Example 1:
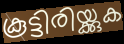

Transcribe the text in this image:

കൂട്ടിരിയ്ക്കുക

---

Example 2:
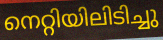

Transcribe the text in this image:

നെറ്റിയിലിടിച്ചു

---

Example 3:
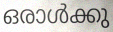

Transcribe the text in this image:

ഒരാൾക്കു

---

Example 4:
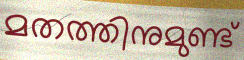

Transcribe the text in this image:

മതത്തിനുമുണ്ട്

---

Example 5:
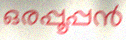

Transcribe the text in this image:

ഒരപ്പൂപ്പൻ